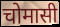
चोमासी